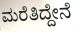
ಮರೆತಿದ್ದೇನೆ